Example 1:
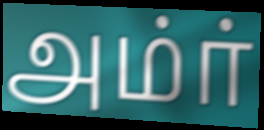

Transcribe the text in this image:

அம்ர்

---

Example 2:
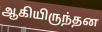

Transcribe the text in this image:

ஆகியிருந்தன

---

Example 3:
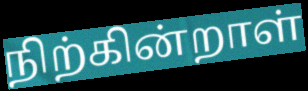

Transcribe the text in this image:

நிற்கின்றாள்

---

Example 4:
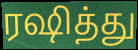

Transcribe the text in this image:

ரஷித்து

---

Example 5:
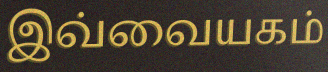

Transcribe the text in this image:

இவ்வையகம்